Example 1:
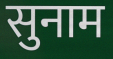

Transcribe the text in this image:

सुनाम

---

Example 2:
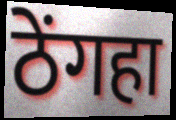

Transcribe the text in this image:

ठेंगहा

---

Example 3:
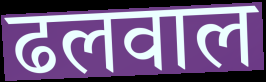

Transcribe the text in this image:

ढलवाल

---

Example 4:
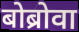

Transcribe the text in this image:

बोब्रोवा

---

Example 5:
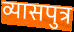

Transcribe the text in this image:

व्यासपुत्र